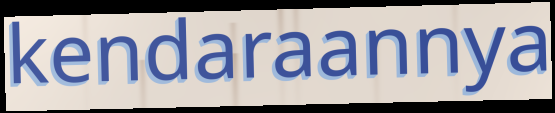
kendaraannya